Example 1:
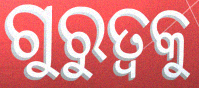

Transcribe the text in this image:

ଗୁରୁତ୍ୱକୁ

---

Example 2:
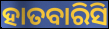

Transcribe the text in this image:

ହାତବାରିସି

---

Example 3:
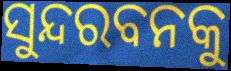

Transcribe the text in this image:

ସୁନ୍ଦରବନକୁ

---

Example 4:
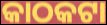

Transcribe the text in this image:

କାଠକଟା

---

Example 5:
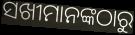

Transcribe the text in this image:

ସଖୀମାନଙ୍କଠାରୁ